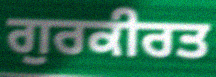
ਗੁਰਕੀਰਤ